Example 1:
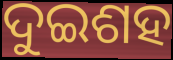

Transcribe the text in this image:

ଦୁଇଶହ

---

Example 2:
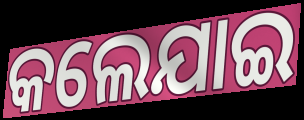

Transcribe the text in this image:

କଲେଯାଇ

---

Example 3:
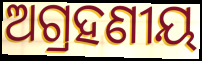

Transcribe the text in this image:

ଅଗ୍ରହଣୀୟ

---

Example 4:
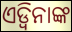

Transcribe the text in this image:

ଏଡ୍ୱିନାଙ୍କ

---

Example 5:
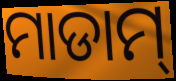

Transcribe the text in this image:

ମାଡାମ୍